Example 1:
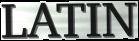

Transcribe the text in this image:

LATIN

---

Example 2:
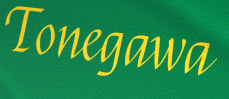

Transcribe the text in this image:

Tonegawa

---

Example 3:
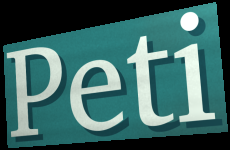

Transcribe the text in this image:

Peti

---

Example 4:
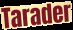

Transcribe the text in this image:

Tarader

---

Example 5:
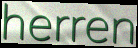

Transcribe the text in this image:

herren